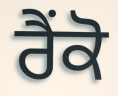
ਰੈਂਕੋ